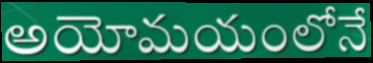
అయోమయంలోనే